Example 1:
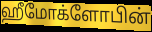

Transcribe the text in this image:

ஹீமோக்ளோபின்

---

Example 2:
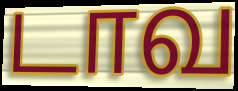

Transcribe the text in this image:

டாவ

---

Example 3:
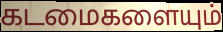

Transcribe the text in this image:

கடமைகளையும்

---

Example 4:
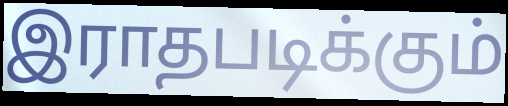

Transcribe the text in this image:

இராதபடிக்கும்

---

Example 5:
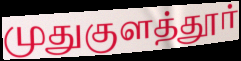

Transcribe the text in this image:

முதுகுளத்தூர்